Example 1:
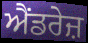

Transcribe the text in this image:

ਐਂਡਰੇਜ਼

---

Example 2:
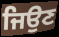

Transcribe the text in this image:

ਜਿਉਣ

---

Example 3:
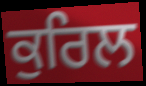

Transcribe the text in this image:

ਕੁਰਿਲ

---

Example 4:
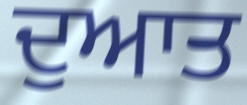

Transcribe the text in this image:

ਦੁਆਤ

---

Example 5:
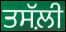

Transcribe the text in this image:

ਤਸੱਲ਼ੀ